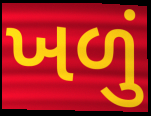
ખળું